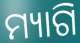
ମ୍ୟାଗି